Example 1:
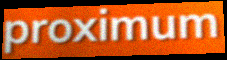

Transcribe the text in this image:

proximum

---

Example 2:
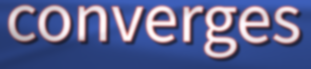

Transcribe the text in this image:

converges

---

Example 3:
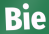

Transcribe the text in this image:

Bie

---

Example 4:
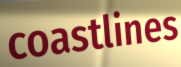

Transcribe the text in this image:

coastlines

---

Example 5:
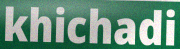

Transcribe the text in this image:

khichadi